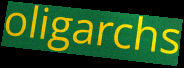
oligarchs